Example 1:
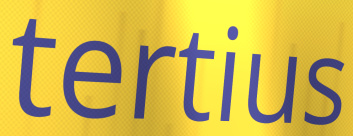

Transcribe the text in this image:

tertius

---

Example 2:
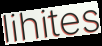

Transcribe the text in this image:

lihites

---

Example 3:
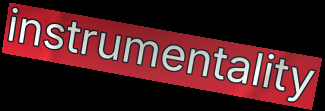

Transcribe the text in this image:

instrumentality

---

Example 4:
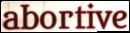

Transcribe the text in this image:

abortive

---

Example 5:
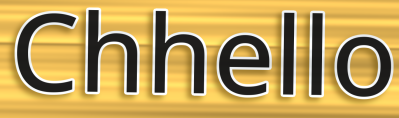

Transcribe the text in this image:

Chhello